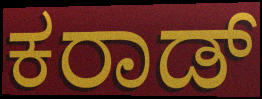
ಕರಾಡ್